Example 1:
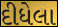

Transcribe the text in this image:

દીધેલા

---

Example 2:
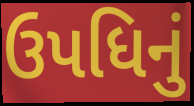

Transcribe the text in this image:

ઉપધિનું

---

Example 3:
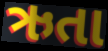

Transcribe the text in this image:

ઋતા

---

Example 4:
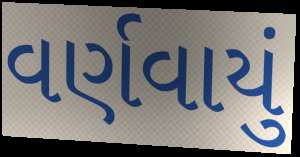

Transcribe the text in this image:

વર્ણવાયું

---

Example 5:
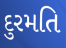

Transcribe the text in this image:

દુરમતિ